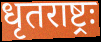
धृतराष्ट्रः